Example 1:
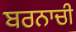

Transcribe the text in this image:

ਬਰਨਾਚੀ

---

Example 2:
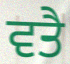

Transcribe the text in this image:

ਵਤੈ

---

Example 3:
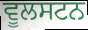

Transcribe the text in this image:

ਵੂਲਸਟਨ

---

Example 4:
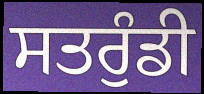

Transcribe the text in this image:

ਸਤਰੁੰਡੀ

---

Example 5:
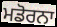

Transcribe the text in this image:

ਮਡੋਰਨਾ